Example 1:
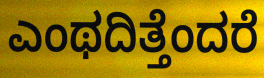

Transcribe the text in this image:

ಎಂಥದಿತ್ತೆಂದರೆ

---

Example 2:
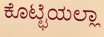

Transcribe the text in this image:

ಕೊಟ್ಟೆಯಲ್ಲಾ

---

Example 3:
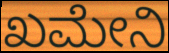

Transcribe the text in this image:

ಖಮೇನಿ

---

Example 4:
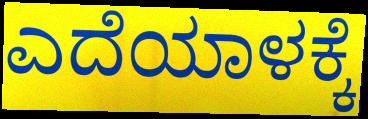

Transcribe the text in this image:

ಎದೆಯಾಳಕ್ಕೆ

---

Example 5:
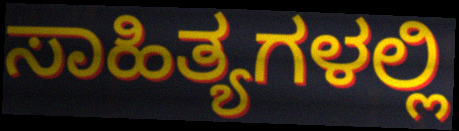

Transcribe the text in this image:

ಸಾಹಿತ್ಯಗಳಲ್ಲಿ